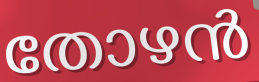
തോഴൻ